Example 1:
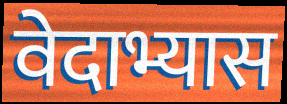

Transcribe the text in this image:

वेदाभ्यास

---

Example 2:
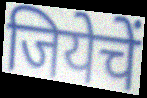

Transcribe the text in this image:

जियेचें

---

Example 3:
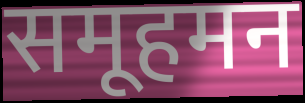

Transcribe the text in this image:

समूहमन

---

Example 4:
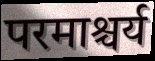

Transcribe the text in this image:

परमाश्चर्य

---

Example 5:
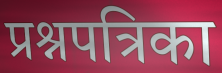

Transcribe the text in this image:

प्रश्नपत्रिका